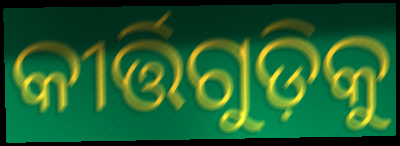
କୀର୍ତ୍ତିଗୁଡ଼ିକୁ